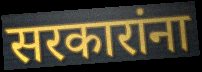
सरकारांना